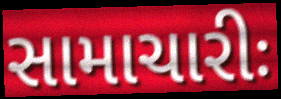
સામાચારીઃ